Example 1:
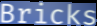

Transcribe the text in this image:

Bricks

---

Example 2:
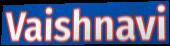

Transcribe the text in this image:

Vaishnavi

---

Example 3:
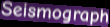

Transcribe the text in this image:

Seismograph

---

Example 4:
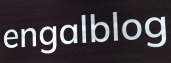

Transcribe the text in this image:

engalblog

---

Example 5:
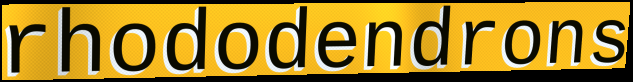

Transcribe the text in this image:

rhododendrons